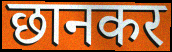
छानकर